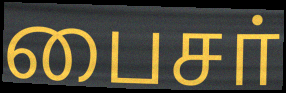
பைசர்